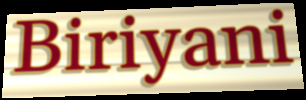
Biriyani